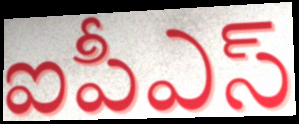
ఐపీఎస్